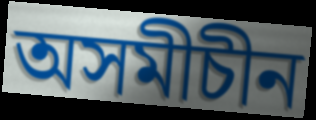
অসমীচীন